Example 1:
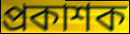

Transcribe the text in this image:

প্ৰকাশক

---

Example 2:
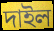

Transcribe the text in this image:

দাইল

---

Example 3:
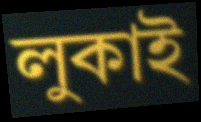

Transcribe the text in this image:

লুকাই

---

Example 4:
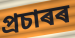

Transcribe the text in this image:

প্ৰচাৰৰ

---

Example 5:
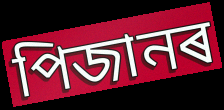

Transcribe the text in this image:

পিজানৰ